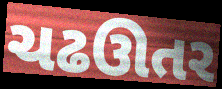
ચઢઊતર